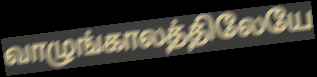
வாழுங்காலத்திலேயே